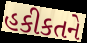
હકીકતને